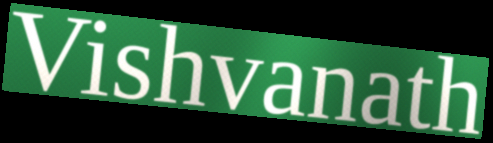
Vishvanath